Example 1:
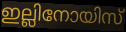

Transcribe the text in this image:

ഇല്ലിനോയിസ്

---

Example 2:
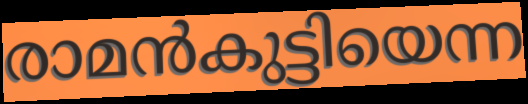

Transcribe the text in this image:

രാമൻകുട്ടിയെന്ന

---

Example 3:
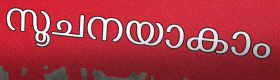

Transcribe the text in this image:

സൂചനയാകാം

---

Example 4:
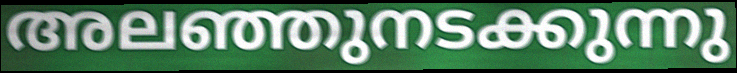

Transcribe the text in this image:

അലഞ്ഞുനടക്കുന്നു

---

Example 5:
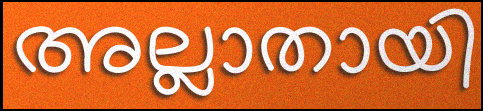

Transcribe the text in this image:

അല്ലാതായി